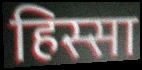
हिस्सा